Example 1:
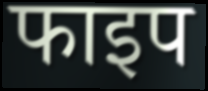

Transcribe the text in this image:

फाइप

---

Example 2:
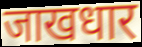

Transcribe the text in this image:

जाखधार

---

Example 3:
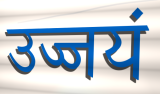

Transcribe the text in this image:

उज्जयं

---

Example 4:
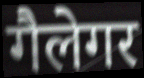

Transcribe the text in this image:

गैलेगर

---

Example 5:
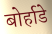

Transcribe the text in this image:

बोर्हाडे